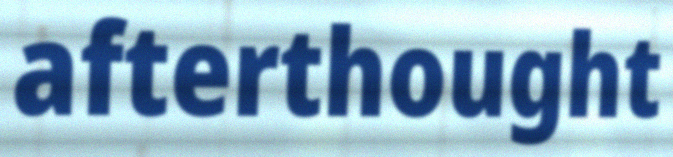
afterthought